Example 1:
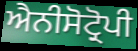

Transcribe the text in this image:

ਐਨੀਸੋਟ੍ਰੋਪੀ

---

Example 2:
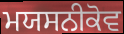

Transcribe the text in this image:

ਮਯਸਨੀਕੋਵ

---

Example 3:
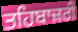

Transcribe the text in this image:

ਤਹਿਬਾਜ਼ਰੀ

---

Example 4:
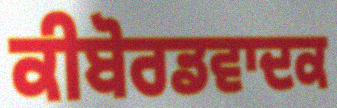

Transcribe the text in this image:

ਕੀਬੋਰਡਵਾਦਕ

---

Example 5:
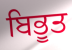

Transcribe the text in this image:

ਬਿਭੂਤ